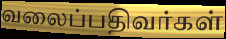
வலைப்பதிவர்கள்